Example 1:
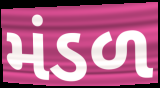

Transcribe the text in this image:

મંડળ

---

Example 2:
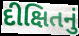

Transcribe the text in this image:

દીક્ષિતનું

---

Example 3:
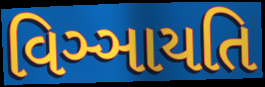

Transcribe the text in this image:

વિઞ્ઞાયતિ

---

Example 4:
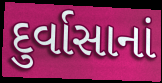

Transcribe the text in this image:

દુર્વાસાનાં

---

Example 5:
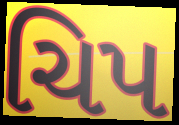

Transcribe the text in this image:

ચિપ